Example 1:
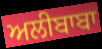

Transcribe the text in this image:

ਅਲੀਬਾਬਾ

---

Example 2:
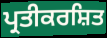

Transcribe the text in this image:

ਪ੍ਰਤੀਕਰਸ਼ਿਤ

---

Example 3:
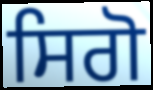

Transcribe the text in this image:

ਸਿਗੋ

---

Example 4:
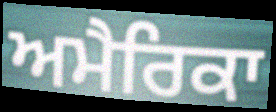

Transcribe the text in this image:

ਅਮੈਰਿਕਾ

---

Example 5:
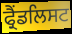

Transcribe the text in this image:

ਫ੍ਰੈਂਡਲਿਸਟ